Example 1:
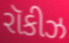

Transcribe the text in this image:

રૉકીઝ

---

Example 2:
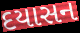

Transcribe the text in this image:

દયાસન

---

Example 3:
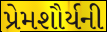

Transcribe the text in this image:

પ્રેમશૌર્યની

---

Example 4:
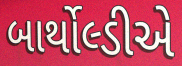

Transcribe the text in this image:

બાર્થોલ્ડીએ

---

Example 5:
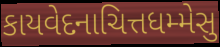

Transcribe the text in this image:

કાયવેદનાચિત્તધમ્મેસુ